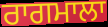
ਰਾਗਮਾਲਾ